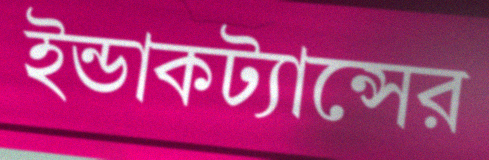
ইন্ডাকট্যান্সের